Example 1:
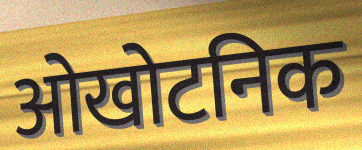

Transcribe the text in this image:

ओखोटनिक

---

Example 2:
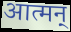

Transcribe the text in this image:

आत्मन्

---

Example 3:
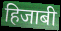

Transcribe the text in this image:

हिजाबी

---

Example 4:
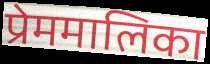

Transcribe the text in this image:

प्रेममालिका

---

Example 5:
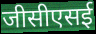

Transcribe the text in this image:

जीसीएसई